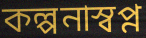
কল্পনাস্বপ্ন